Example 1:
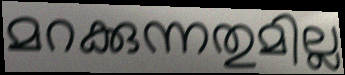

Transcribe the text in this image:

മറക്കുന്നതുമില്ല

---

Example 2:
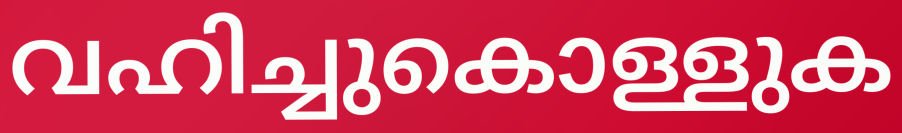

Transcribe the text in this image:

വഹിച്ചുകൊള്ളുക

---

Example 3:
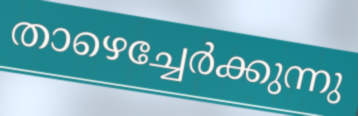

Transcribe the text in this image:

താഴെച്ചേർക്കുന്നു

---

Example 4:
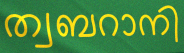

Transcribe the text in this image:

ത്വബറാനി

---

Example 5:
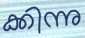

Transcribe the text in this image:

ക്കിന്നു